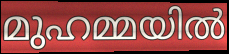
മുഹമ്മയിൽ